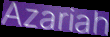
Azariah